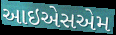
આઇએસએમ